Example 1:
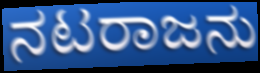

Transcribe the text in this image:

ನಟರಾಜನು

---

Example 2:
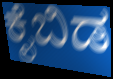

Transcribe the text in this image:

ಕೈಬಿಡ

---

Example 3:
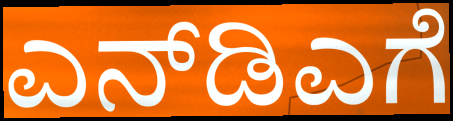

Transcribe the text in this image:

ಎನ್‌ಡಿಎಗೆ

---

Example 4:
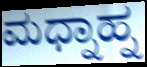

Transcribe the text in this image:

ಮಧ್ನಾಹ್ನ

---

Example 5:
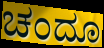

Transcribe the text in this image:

ಚಂದೂ